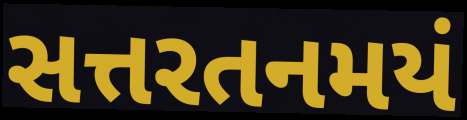
સત્તરતનમયં